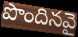
పొందినవై